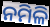
ନମିଳି